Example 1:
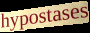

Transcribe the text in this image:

hypostases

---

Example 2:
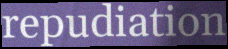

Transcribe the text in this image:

repudiation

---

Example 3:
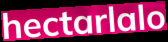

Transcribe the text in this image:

hectarlalo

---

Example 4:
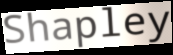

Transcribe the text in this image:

Shapley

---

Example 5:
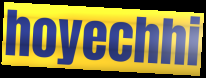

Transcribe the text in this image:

hoyechhi